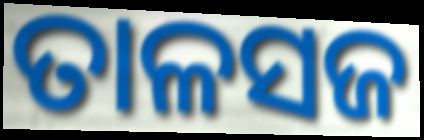
ତାଳସଜ